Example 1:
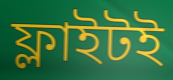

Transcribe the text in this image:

ফ্লাইটই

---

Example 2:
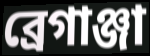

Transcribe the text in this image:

ব্রেগাঞ্জা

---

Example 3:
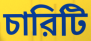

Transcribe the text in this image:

চারিটি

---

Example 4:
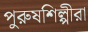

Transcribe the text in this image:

পুরুষশিল্পীরা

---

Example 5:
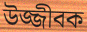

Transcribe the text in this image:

উজ্জীবক